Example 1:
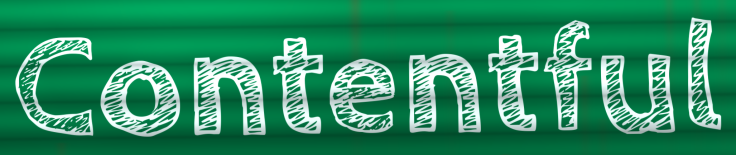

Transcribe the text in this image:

Contentful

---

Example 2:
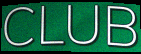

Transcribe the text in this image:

CLUB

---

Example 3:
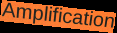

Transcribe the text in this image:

Amplification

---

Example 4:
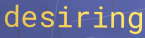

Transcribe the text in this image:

desiring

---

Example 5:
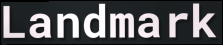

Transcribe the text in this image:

Landmark